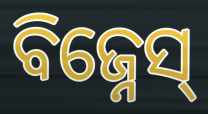
ବିଜ୍ନେସ୍